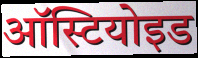
ऑस्टियोइड